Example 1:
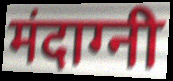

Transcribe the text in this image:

मंदाग्नी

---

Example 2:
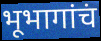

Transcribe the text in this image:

भूभागांचं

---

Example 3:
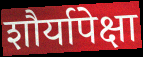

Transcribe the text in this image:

शौर्यापेक्षा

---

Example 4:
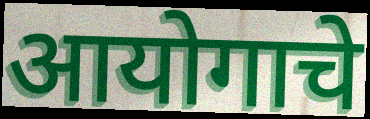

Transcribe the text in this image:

आयोगाचे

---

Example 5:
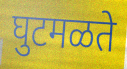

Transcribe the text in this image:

घुटमळते